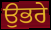
ਉਭਰੇ